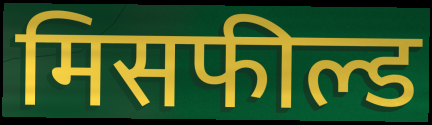
मिसफील्ड